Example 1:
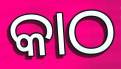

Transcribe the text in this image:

କାଠ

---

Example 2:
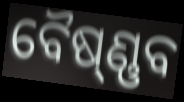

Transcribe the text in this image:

ବୈଷ୍ଣ୍ଣବ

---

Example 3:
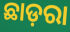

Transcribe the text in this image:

ଛାଡ଼ରା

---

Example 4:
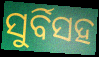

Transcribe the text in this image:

ସୁର୍ବିସହ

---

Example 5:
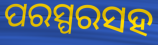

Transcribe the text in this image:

ପରସ୍ପରସହ